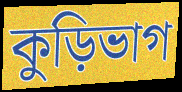
কুড়িভাগ